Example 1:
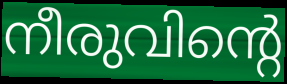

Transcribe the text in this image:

നീരുവിന്റെ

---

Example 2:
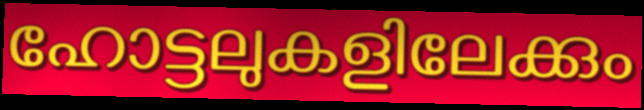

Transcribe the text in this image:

ഹോട്ടലുകളിലേക്കും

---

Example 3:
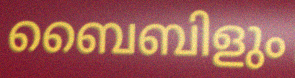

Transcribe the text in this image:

ബൈബിളും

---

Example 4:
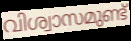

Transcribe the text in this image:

വിശ്വാസമുണ്ട്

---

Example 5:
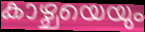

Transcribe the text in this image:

കാഴ്ചയെയും